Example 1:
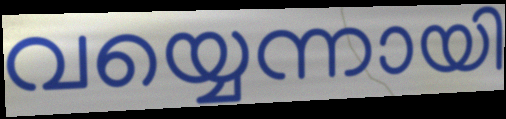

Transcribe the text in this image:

വയ്യെന്നായി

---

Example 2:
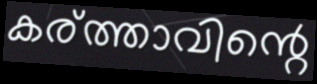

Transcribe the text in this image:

കര്ത്താവിന്റെ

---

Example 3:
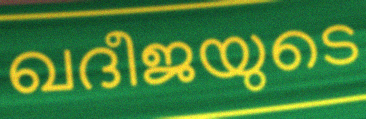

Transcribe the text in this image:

ഖദീജയുടെ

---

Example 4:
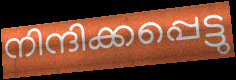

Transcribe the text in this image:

നിന്ദിക്കപ്പെട്ടു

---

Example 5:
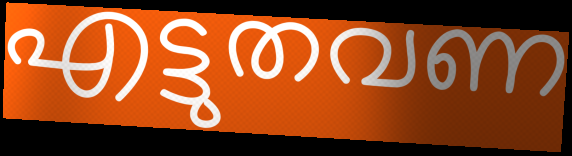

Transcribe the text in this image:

എട്ടുതവണ